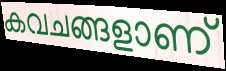
കവചങ്ങളാണ്